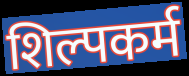
शिल्पकर्म